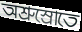
অশ্রুস্রোতে